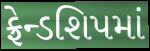
ફ્રેન્ડશિપમાં